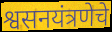
श्वसनयंत्रणेचे